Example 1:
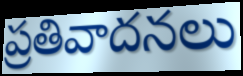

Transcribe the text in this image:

ప్రతివాదనలు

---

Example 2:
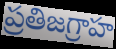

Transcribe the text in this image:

ప్రతిజగ్రాహ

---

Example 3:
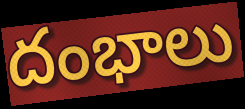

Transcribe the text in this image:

దంభాలు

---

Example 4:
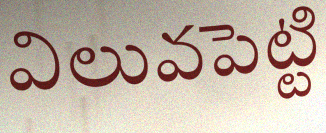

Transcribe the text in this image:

విలువపెట్టి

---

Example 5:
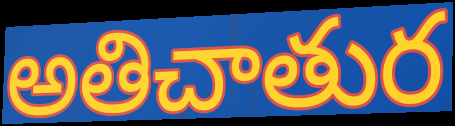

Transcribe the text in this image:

అతిచాతుర